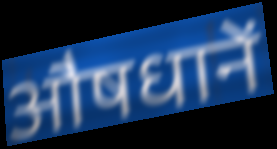
औषधानें